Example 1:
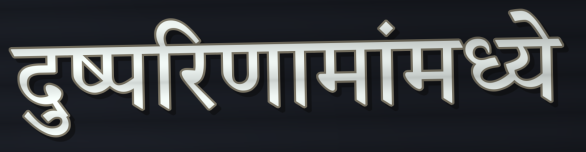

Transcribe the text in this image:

दुष्परिणामांमध्ये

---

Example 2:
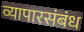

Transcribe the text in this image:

व्यापारसंबंध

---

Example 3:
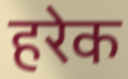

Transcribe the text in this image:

हरेक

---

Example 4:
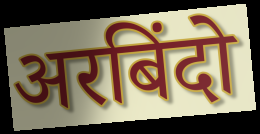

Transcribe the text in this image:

अरबिंदो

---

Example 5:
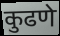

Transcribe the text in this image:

कुढणे